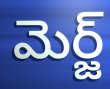
మెర్జ్